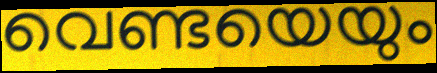
വെണ്ടയെയും